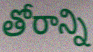
తోరాన్ని